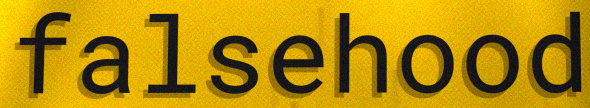
falsehood